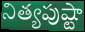
నిత్యపుష్టా